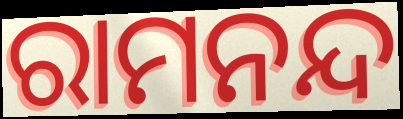
ରାମନନ୍ଦ